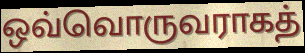
ஒவ்வொருவராகத்